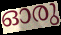
ഓരു